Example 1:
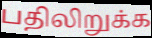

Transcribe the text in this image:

பதிலிறுக்க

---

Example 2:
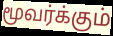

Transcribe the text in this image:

மூவர்க்கும்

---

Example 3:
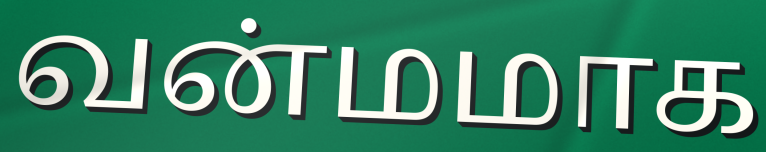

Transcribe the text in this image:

வன்மமாக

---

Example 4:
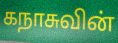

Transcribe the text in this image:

கநாசுவின்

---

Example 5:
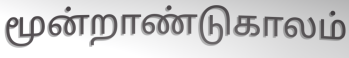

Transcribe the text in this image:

மூன்றாண்டுகாலம்